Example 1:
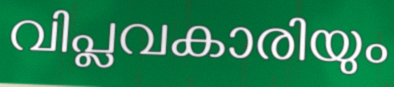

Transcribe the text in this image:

വിപ്ലവകാരിയും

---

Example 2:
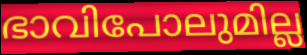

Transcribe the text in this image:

ഭാവിപോലുമില്ല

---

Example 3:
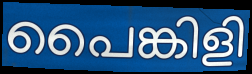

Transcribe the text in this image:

പൈങ്കിളി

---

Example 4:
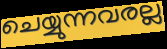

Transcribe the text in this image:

ചെയ്യുന്നവരല്ല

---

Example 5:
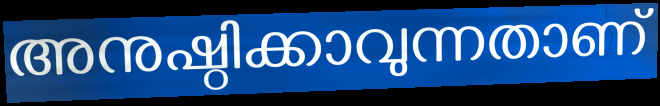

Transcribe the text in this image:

അനുഷ്ഠിക്കാവുന്നതാണ്